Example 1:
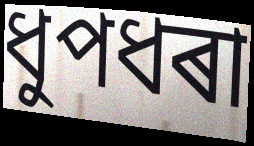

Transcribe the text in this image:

ধুপধৰা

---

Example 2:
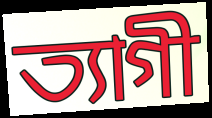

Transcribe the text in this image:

ত্যাগী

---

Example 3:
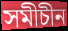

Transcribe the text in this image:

সমীচীন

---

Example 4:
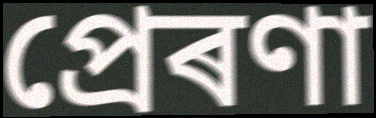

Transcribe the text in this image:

প্ৰেৰণা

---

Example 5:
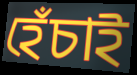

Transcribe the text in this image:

হেঁচাই